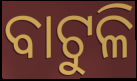
ବାଟୁଳି